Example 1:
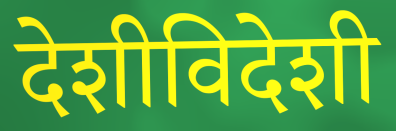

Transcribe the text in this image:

देशीविदेशी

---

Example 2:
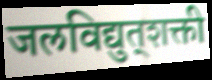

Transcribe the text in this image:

जलविद्युत्‌शक्ती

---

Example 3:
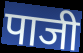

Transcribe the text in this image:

पाजी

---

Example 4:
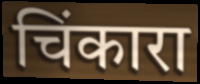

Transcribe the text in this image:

चिंकारा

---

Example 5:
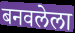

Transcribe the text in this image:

बनवलेला